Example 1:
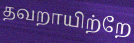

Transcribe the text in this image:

தவறாயிற்றே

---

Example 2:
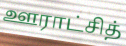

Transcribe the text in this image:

ஊராட்சித்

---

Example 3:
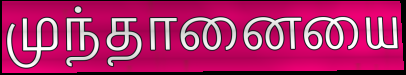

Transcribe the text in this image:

முந்தானையை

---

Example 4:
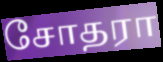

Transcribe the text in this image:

சோதரா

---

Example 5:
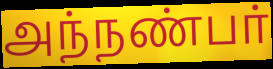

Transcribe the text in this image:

அந்நண்பர்